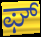
ಘ್